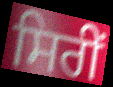
ਸਿਰੀਂ